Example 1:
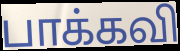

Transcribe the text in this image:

பாக்கவி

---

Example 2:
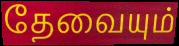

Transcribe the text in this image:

தேவையும்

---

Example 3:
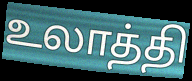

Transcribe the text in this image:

உலாத்தி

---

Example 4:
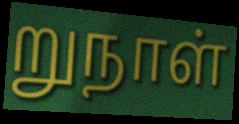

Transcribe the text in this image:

றுநாள்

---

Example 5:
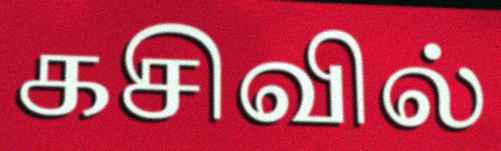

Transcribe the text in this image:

கசிவில்